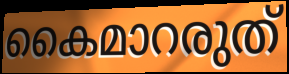
കൈമാറരുത്